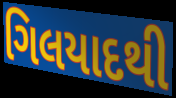
ગિલયાદથી